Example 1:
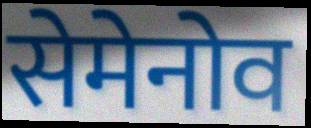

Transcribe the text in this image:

सेमेनोव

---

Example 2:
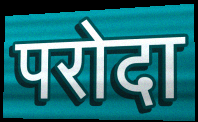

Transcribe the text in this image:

परोदा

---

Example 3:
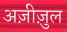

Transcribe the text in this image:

अज़ीज़ुल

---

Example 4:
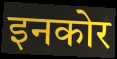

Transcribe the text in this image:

इनकोर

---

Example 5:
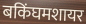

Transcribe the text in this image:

बकिंघमशायर